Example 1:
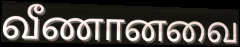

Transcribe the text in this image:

வீணானவை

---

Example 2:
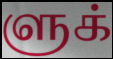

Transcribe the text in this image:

ளுக்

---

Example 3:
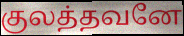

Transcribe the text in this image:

குலத்தவனே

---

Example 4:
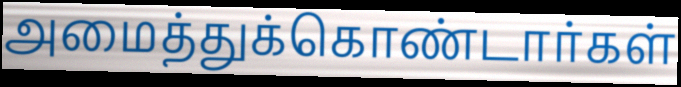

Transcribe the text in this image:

அமைத்துக்கொண்டார்கள்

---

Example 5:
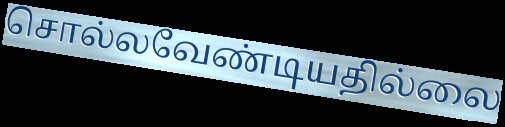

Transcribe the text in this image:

சொல்லவேண்டியதில்லை